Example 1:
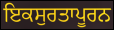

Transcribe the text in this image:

ਇਕਸੁਰਤਾਪੂਰਨ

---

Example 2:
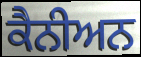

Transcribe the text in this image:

ਕੈਨੀਅਨ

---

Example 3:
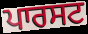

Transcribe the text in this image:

ਪਾਰਸਟ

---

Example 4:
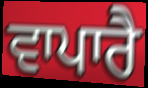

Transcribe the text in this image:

ਵਾਪਾਰੈ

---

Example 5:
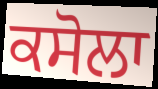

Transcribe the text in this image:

ਕਸੋਲਾ